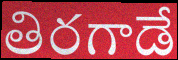
తిరగాడే